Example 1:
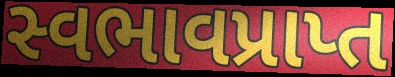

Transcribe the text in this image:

સ્વભાવપ્રાપ્ત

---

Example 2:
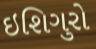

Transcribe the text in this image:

ઇશિગુરો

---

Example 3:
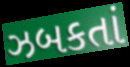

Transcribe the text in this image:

ઝબકતાં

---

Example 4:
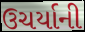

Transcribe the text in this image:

ઉચર્યાની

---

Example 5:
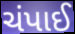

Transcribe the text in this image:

ચંપાઈ